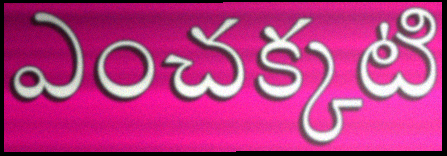
ఎంచక్కటి